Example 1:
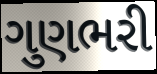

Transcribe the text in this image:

ગુણભરી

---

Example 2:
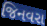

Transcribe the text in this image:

જિનવરા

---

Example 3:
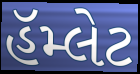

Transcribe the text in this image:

હૅમ્લેટ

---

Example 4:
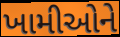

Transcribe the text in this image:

ખામીઓને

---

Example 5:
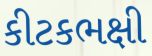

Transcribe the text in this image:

કીટકભક્ષી